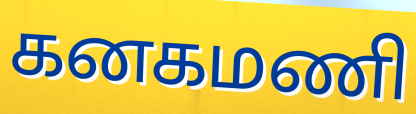
கனகமணி